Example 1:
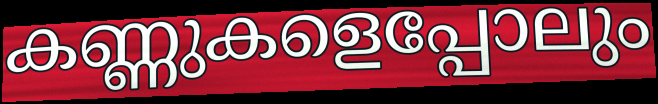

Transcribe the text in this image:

കണ്ണുകളെപ്പോലും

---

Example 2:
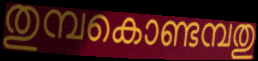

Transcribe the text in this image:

തുമ്പകൊണ്ടമ്പതു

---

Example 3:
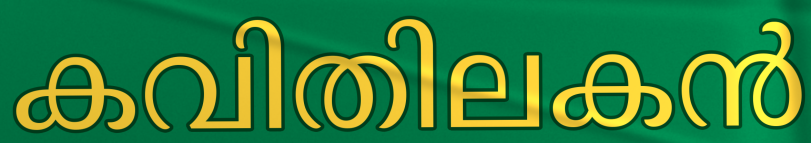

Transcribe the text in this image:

കവിതിലകൻ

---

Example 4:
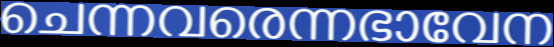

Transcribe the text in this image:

ചെന്നവരെന്നഭാവേന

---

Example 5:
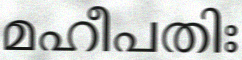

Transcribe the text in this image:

മഹീപതിഃ